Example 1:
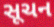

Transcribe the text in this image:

સૂચન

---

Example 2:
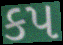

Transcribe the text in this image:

કપ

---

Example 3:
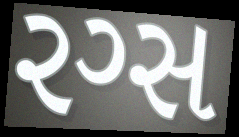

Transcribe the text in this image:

રગ્સ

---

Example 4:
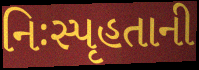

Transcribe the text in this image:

નિઃસ્પૃહતાની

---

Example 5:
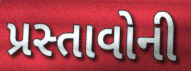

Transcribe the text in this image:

પ્રસ્તાવોની